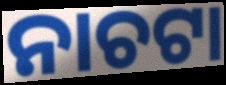
ନାଚଟା